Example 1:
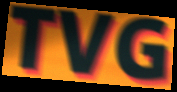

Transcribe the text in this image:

TVG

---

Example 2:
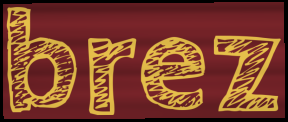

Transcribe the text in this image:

brez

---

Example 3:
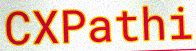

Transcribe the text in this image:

CXPathi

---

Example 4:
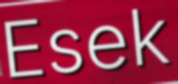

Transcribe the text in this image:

Esek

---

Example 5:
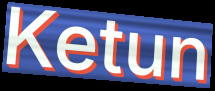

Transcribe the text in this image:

Ketun